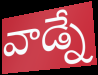
వాడ్నే